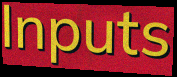
Inputs